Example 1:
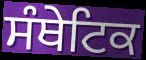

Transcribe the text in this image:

ਸੰਥੇਟਿਕ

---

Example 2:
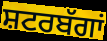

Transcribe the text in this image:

ਸ਼ਟਰਬੱਗਾਂ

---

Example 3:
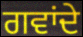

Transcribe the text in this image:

ਗਵਾਂਦੇ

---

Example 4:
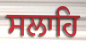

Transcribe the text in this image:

ਸਲਾਹਿ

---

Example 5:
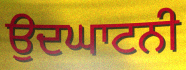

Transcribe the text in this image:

ਉਦਘਾਟਨੀ